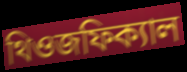
থিওজফিক্যাল